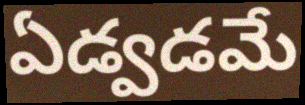
ఏడ్వడమే